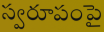
స్వరూపంపై